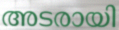
അടരായി